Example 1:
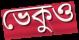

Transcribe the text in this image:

ভেকুও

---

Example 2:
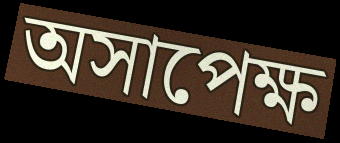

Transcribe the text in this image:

অসাপেক্ষ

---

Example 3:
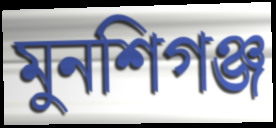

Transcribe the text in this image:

মুনশিগঞ্জ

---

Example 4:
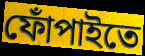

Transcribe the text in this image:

ফোঁপাইতে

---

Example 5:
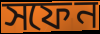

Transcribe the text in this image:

সফেন